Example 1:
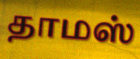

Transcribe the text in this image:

தாமஸ்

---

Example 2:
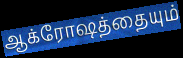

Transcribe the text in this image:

ஆக்ரோஷத்தையும்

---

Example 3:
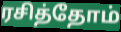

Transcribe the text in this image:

ரசித்தோம்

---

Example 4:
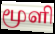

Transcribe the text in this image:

மூளி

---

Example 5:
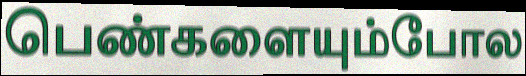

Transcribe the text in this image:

பெண்களையும்போல